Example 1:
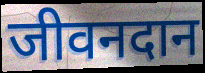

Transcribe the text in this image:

जीवनदान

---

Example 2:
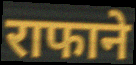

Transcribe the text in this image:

राफाने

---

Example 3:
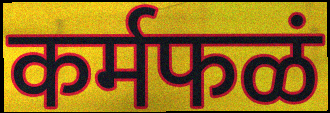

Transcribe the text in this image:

कर्मफळं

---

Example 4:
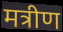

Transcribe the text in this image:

मत्रीण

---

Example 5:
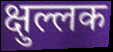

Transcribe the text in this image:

क्षुल्लक